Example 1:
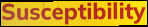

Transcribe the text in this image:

Susceptibility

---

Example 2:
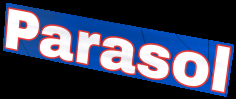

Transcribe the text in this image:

Parasol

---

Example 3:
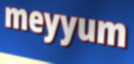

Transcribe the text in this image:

meyyum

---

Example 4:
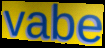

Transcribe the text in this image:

vabe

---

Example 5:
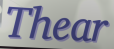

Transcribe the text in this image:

Thear